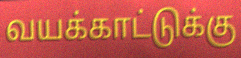
வயக்காட்டுக்கு